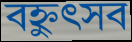
বহ্নুৎসব